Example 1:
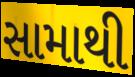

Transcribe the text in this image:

સામાથી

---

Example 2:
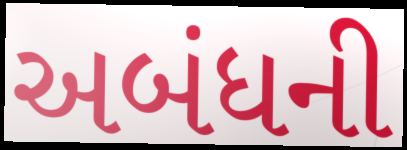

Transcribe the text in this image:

અબંધની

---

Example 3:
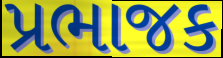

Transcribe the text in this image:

પ્રભાજક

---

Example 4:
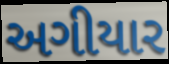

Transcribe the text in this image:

અગીયાર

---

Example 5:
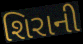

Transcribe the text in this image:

શિરાની